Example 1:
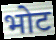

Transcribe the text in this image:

भोट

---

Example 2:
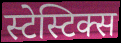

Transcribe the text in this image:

स्टेस्टिक्स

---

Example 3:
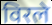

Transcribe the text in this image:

विरले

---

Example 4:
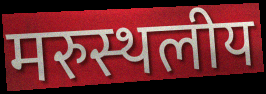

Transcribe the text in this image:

मरुस्थलीय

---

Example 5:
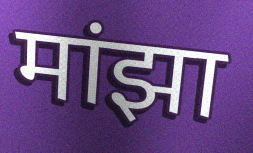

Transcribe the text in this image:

मांझा